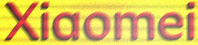
Xiaomei